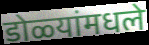
डोळ्यांमधले